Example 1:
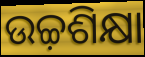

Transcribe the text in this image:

ଉଚ୍ଚ଼ଶିକ୍ଷା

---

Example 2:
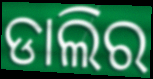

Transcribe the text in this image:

ଡାଲିର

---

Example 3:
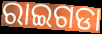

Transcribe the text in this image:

ରାଇଗଡା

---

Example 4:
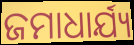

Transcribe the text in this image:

ଜମାଧାର୍ଯ୍ୟ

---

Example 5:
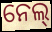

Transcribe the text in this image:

ନେଲ୍